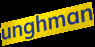
unghman